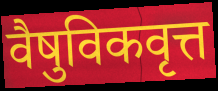
वैषुविकवृत्त